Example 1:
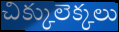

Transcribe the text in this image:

చిక్కులెక్కలు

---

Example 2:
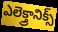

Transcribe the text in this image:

ఎలెక్త్రానిక్స్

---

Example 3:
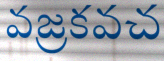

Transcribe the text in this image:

వజ్రకవచ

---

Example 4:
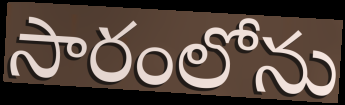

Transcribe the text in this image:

సారంలోను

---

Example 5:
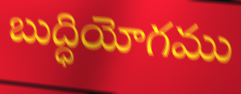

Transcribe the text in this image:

బుద్ధియోగము